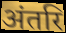
अंतरि